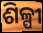
ଶିଳ୍ପୀ